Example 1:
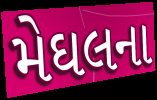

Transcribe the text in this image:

મેઘલના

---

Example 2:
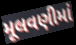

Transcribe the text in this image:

મૂલવણીમાં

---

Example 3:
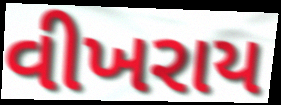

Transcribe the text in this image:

વીખરાય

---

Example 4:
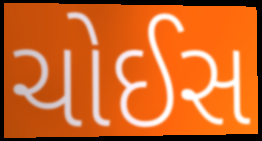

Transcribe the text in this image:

ચોઈસ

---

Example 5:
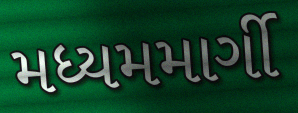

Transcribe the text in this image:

મધ્યમમાર્ગી